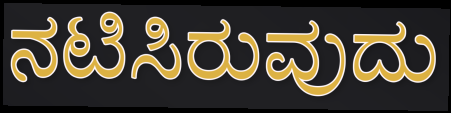
ನಟಿಸಿರುವುದು